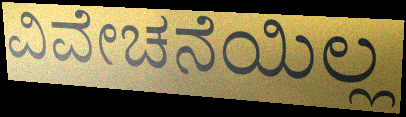
ವಿವೇಚನೆಯಿಲ್ಲ